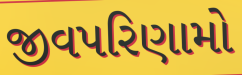
જીવપરિણામો